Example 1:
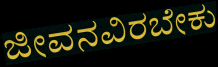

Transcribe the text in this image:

ಜೀವನವಿರಬೇಕು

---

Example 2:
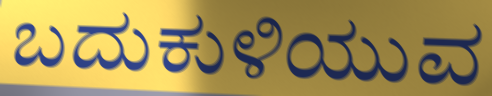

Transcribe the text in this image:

ಬದುಕುಳಿಯುವ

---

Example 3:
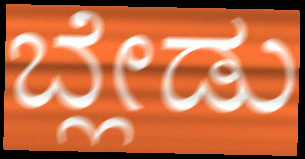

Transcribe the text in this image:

ಬ್ಲೇಡು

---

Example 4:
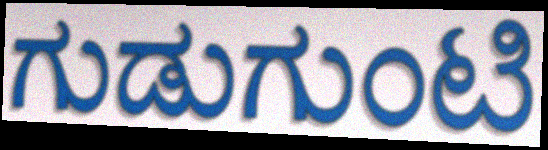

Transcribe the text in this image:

ಗುಡುಗುಂಟಿ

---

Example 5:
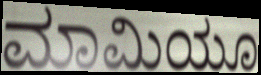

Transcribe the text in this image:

ಮಾಮಿಯೂ